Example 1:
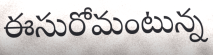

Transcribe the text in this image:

ఈసురోమంటున్న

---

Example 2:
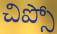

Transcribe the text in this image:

చిప్సో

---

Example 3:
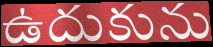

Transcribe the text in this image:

ఉదుకును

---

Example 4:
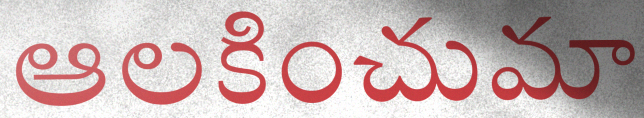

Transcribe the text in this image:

ఆలకించుమా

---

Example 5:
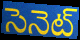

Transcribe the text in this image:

సెనెట్